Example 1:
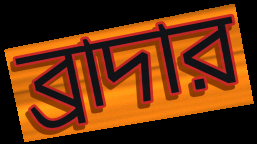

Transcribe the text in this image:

ব্রাদার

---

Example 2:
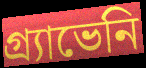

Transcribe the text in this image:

গ্র্যাভেনি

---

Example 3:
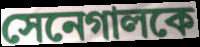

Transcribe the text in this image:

সেনেগালকে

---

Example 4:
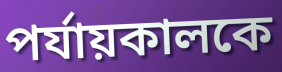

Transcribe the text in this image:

পর্যায়কালকে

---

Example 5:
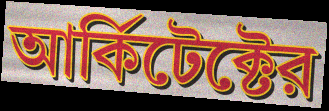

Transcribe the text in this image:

আর্কিটেক্টের